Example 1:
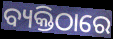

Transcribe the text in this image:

ବ୍ୟକ୍ତିଠାରେ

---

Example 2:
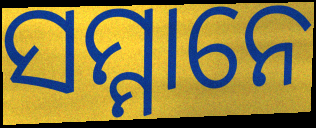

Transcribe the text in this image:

ସମ୍ମାନେ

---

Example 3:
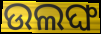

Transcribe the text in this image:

ଉଲଙ୍ଘ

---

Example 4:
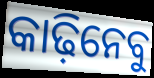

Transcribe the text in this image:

କାଢ଼ିନେବୁ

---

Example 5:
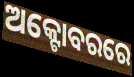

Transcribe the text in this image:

ଅକ୍ଟୋବରରେ